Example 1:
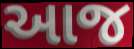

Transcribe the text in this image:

આજ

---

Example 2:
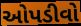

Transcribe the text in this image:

ઓપડીવો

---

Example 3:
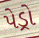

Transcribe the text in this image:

પેડ્રો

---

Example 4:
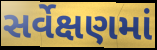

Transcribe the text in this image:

સર્વેક્ષણમાં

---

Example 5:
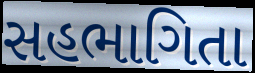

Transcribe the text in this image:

સહભાગિતા